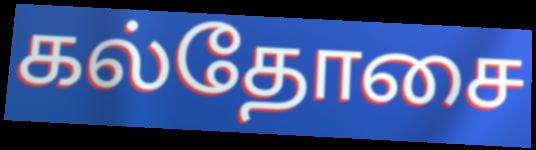
கல்தோசை